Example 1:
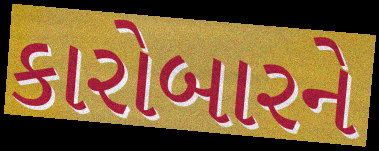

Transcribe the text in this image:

કારોબારને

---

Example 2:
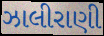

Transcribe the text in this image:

ઝાલીરાણી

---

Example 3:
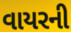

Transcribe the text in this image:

વાયરની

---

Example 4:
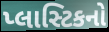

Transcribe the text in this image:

પ્લાસ્ટિકનો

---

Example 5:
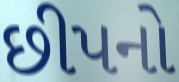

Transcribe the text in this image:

છીપનો